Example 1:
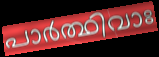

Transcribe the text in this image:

പാർത്ഥിവാഃ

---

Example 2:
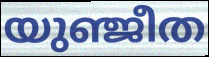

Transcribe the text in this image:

യുഞ്ജീത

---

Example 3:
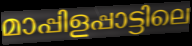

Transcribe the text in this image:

മാപ്പിളപ്പാട്ടിലെ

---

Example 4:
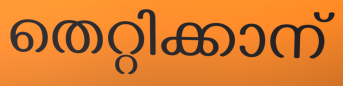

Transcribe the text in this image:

തെറ്റിക്കാന്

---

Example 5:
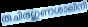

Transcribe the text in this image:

രുചിരഗുണശാലിനി